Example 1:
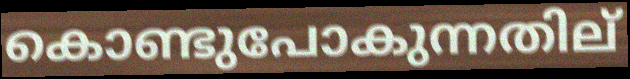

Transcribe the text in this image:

കൊണ്ടുപോകുന്നതില്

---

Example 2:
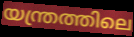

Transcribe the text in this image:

യന്ത്രത്തിലെ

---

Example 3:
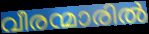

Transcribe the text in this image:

വീരന്മാരിൽ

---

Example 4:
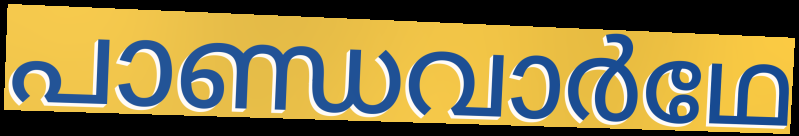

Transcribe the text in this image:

പാണ്ഡവാർഥേ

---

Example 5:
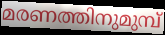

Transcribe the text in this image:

മരണത്തിനുമുമ്പ്